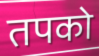
तपको